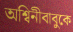
অশ্বিনীবাবুকে